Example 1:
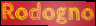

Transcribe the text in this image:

Rodogno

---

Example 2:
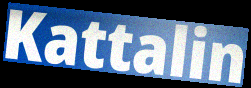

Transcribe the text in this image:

Kattalin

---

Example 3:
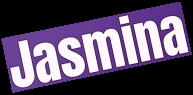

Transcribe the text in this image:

Jasmina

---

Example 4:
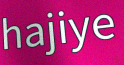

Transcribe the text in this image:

hajiye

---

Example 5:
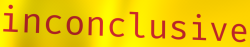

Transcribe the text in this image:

inconclusive